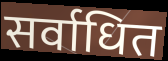
सर्वाधित